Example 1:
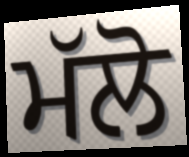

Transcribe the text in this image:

ਮੱਲੋ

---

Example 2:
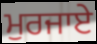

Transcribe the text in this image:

ਮੁਰਜਾਏ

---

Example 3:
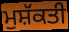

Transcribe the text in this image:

ਮੁਸ਼ੱਕਤੀ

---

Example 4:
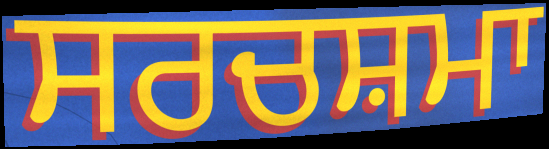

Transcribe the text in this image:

ਸਰਚਸ਼ਮਾ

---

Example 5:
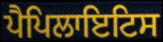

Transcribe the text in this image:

ਪੈਪਿਲਾਇਟਿਸ